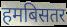
हमबिसतर